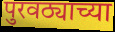
पुरवठ्याच्या